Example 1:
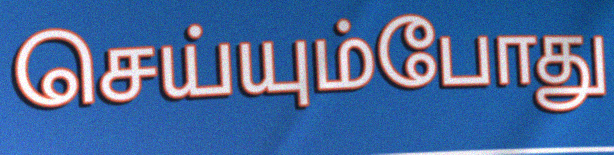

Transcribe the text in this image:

செய்யும்போது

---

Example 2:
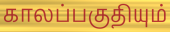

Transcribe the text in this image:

காலப்பகுதியும்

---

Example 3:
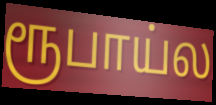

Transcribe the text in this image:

ரூபாய்ல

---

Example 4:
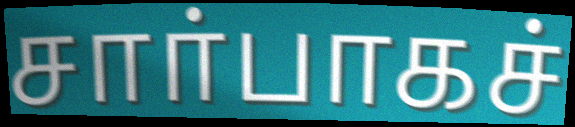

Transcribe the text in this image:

சார்பாகச்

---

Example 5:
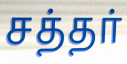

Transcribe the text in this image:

சத்தர்